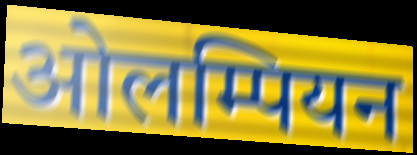
ओलम्पियन